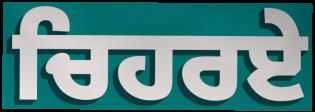
ਚਿਹਰਏ